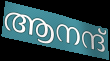
ആനന്ദ്